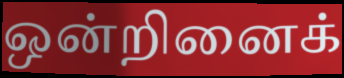
ஒன்றினைக்